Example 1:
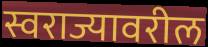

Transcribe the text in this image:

स्वराज्यावरील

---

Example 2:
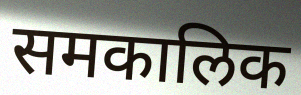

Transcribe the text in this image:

समकालिक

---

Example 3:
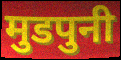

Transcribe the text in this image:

मुडपुनी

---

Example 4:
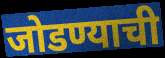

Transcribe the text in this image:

जोडण्याची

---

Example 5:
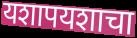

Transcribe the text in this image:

यशापयशाचा